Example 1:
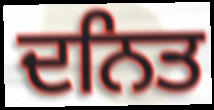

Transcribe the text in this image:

ਦਨਿਤ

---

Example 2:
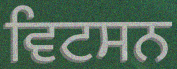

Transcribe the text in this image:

ਵਿਟਸਨ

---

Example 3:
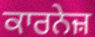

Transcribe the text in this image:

ਕਾਰਨੇਜ਼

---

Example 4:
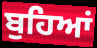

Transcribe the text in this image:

ਬੁਹਿਆਂ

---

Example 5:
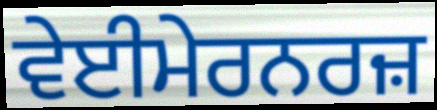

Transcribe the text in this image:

ਵੇਈਮੇਰਨਰਜ਼